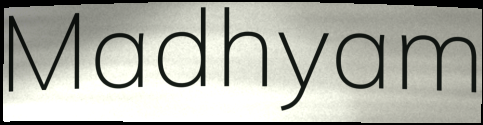
Madhyam